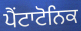
ਪੈਂਟਾਟੋਨਿਕ